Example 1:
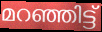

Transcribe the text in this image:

മറഞ്ഞിട്ട്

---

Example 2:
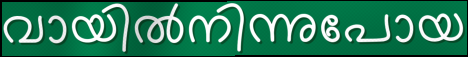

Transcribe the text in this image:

വായിൽനിന്നുപോയ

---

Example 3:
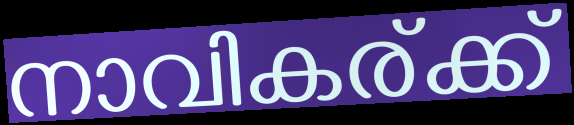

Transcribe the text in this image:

നാവികര്ക്ക്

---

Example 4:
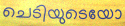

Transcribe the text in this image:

ചെടിയുടെയോ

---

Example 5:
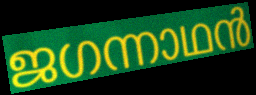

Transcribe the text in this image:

ജഗന്നാഥൻ